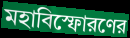
মহাবিস্ফোরণের